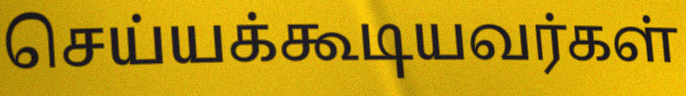
செய்யக்கூடியவர்கள்